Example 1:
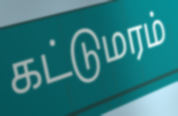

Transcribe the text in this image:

கட்டுமரம்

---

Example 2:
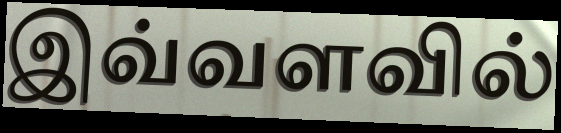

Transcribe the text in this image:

இவ்வளவில்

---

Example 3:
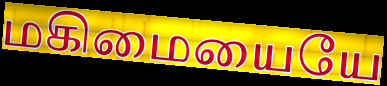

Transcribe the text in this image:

மகிமையையே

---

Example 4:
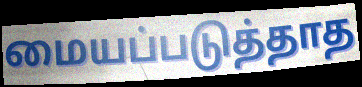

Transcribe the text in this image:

மையப்படுத்தாத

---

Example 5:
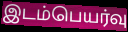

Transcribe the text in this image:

இடம்பெயர்வு